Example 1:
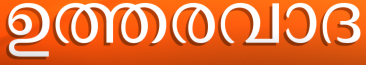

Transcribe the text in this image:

ഉത്തരവാദ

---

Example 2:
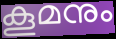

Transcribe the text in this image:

കൂമനും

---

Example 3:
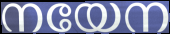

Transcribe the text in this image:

നയേന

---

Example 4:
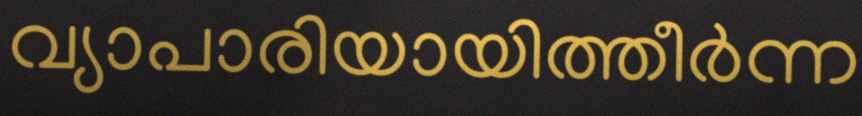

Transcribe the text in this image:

വ്യാപാരിയായിത്തീർന്ന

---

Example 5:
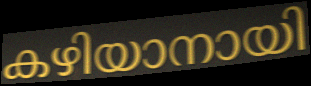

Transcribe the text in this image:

കഴിയാനായി